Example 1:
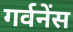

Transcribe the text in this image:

गर्वनेंस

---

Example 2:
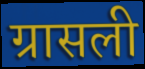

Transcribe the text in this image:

ग्रासली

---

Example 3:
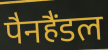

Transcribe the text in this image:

पैनहैंडल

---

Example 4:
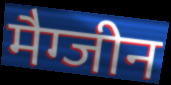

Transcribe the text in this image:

मैग्जीन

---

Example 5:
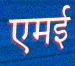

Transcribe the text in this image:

एमई